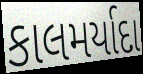
કાલમર્યાદા